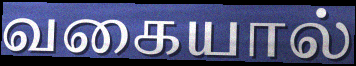
வகையால்